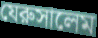
যেরুসালেম